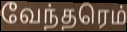
வேந்தரெம்